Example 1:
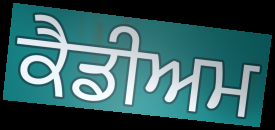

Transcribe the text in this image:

ਕੈਡੀਅਮ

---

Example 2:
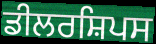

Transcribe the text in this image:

ਡੀਲਰਸ਼ਿਪਸ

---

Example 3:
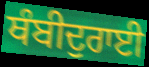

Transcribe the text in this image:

ਥੰਬੀਦੁਰਾਈ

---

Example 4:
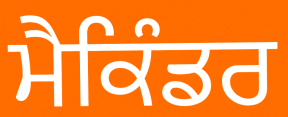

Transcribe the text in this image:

ਮੈਕਿੰਡਰ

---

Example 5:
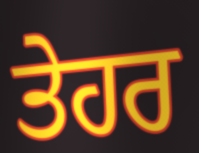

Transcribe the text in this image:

ਤੇਹਰ